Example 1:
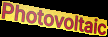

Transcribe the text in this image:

Photovoltaic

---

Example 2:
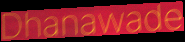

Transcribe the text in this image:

Dhanawade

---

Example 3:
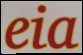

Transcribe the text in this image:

eia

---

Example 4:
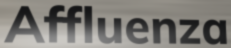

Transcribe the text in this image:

Affluenza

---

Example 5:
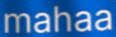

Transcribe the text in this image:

mahaa